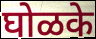
घोळके